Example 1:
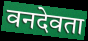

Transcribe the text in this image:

वनदेवता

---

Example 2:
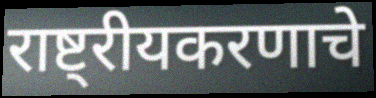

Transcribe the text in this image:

राष्ट्रीयकरणाचे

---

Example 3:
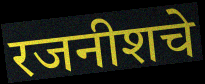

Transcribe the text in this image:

रजनीशचे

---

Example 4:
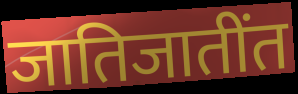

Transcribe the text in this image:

जातिजातींत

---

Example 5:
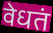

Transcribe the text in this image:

वेधतं